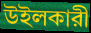
উইলকারী